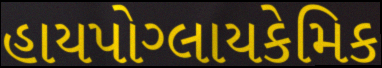
હાયપોગ્લાયકેમિક